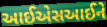
આઈએસઆઈને